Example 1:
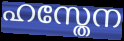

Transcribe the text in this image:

ഹസ്തേന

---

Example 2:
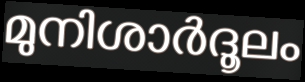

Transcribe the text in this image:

മുനിശാർദൂലം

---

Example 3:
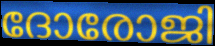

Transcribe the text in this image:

ദോരോജി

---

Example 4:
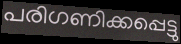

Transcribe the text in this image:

പരിഗണിക്കപ്പെട്ടു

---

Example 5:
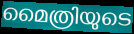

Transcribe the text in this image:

മൈത്രിയുടെ